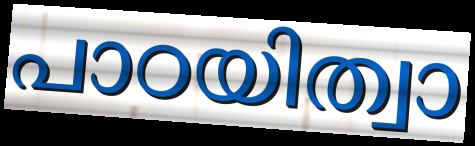
പാഠയിത്വാ